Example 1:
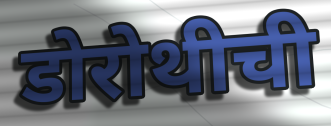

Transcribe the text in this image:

डोरोथीची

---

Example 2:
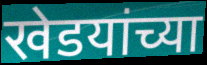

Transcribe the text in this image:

खेडयांच्या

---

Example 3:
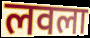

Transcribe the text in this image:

लवला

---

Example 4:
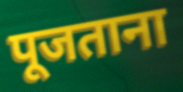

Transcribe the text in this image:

पूजताना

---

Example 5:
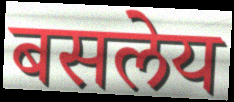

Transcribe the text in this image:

बसलेय